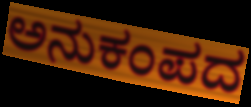
ಅನುಕಂಪದ